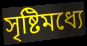
সৃষ্টিমধ্যে